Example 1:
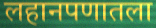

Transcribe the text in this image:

लहानपणातला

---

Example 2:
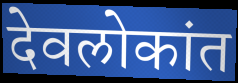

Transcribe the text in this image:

देवलोकांत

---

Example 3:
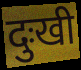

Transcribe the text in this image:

दुःखी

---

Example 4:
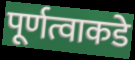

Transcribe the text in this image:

पूर्णत्वाकडे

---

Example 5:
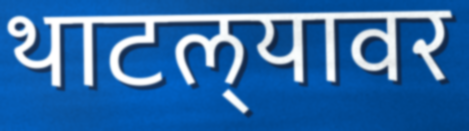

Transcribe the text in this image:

थाटल्यावर